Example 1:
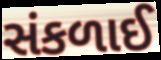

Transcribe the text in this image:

સંકળાઈ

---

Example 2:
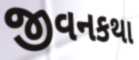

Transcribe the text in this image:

જીવનકથા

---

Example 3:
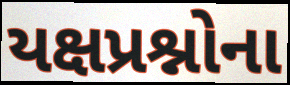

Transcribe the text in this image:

યક્ષપ્રશ્નોના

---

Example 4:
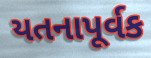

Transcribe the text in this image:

યતનાપૂર્વક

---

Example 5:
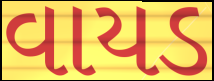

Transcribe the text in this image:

વાયડ